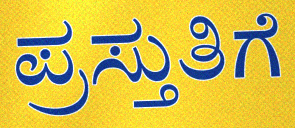
ಪ್ರಸ್ತುತಿಗೆ